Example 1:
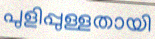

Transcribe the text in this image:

പുളിപ്പുള്ളതായി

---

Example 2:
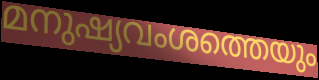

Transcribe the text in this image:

മനുഷ്യവംശത്തെയും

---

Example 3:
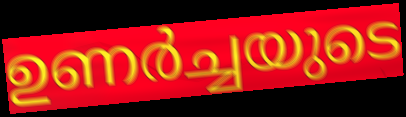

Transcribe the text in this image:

ഉണർച്ചയുടെ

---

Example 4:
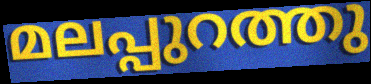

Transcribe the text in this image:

മലപ്പുറത്തു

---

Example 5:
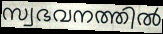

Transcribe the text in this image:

സ്വഭവനത്തിൽ